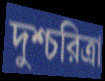
দুশ্চরিত্রা